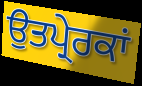
ਉਤਪ੍ਰੇਰਕਾਂ